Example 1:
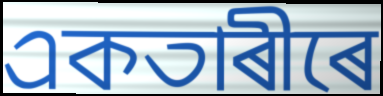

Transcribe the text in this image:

একতাৰীৰে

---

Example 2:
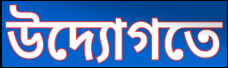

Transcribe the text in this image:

উদ্যোগতে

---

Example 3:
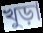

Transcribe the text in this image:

খুড়া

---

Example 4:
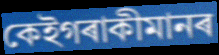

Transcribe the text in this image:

কেইগৰাকীমানৰ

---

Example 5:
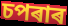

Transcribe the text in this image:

চপৰাৰ